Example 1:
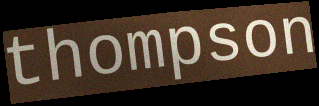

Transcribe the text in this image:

thompson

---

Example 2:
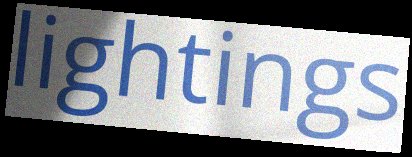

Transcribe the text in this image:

lightings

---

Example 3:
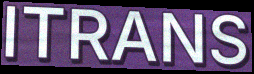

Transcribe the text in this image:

ITRANS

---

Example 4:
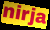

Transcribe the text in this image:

nirja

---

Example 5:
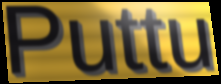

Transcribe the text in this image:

Puttu